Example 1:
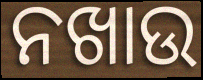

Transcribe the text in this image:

ନଖାଉ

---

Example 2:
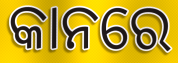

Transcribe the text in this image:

କାନରେ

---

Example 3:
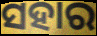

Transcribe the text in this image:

ସହାର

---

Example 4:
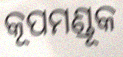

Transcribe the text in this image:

କୂପମଣ୍ଡୂକ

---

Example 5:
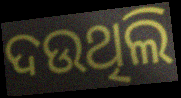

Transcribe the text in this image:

ଦଉଥିଲି